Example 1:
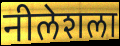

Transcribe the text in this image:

नीलेशला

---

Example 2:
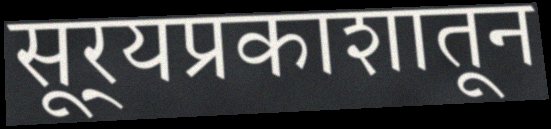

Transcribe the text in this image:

सूर्यप्रकाशातून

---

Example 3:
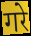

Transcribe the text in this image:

गरे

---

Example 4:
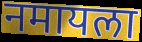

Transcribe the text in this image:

नमायला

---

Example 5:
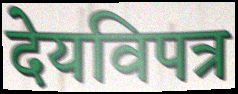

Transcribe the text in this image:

देयविपत्र